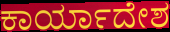
ಕಾರ್ಯಾದೇಶ